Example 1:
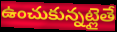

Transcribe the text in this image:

ఉంచుకున్నట్లైతే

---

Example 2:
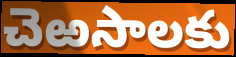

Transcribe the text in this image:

చెఱసాలకు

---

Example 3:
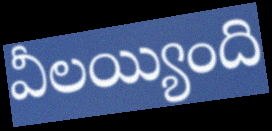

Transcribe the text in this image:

వీలయ్యింది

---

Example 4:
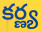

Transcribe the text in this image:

కర్ణ్య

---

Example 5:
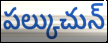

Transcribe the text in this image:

పల్కుచున్